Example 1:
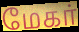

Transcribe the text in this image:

மேகர்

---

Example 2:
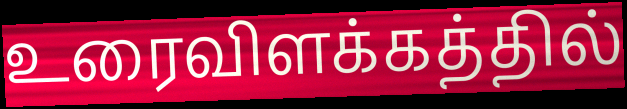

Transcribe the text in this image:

உரைவிளக்கத்தில்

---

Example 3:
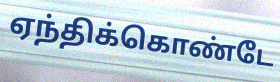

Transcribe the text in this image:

ஏந்திக்கொண்டே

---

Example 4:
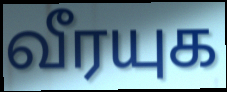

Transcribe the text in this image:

வீரயுக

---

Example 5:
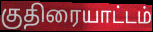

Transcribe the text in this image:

குதிரையாட்டம்